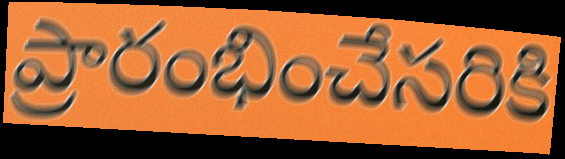
ప్రారంభించేసరికి